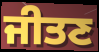
ਜੀਤਣ